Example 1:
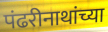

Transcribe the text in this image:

पंढरीनाथांच्या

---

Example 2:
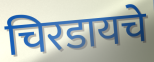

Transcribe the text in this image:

चिरडायचे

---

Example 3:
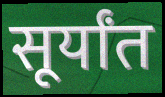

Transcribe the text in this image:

सूर्यांत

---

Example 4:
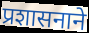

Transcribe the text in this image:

प्रशासनाने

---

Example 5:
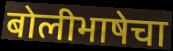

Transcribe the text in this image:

बोलीभाषेचा